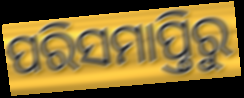
ପରିସମାପ୍ତିରୁ